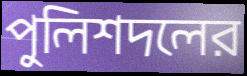
পুলিশদলের